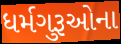
ધર્મગુરૂઓના